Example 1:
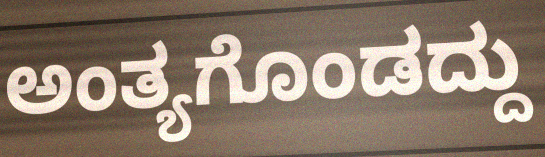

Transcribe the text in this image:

ಅಂತ್ಯಗೊಂಡದ್ದು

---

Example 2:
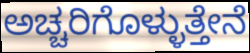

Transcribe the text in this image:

ಅಚ್ಚರಿಗೊಳ್ಳುತ್ತೇನೆ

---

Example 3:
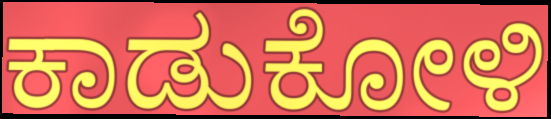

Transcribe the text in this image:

ಕಾಡುಕೋಳಿ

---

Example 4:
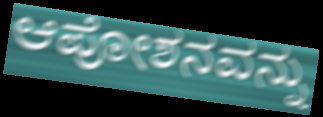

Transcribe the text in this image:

ಆಪೋಶನವನ್ನು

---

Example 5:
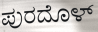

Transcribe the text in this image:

ಪುರದೊಳ್